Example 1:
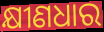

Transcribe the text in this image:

କ୍ଷୀଣଧାର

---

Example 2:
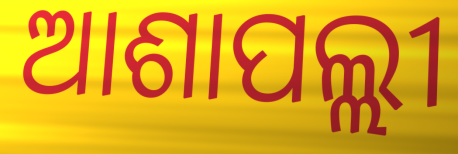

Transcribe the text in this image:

ଆଶାପଲ୍ଲୀ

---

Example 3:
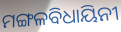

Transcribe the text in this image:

ମଙ୍ଗଳବିଧାୟିନୀ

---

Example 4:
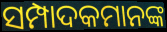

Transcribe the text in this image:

ସମ୍ପାଦକମାନଙ୍କ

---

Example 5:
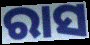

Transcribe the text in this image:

ରାସ